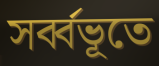
সর্ব্বভূতে